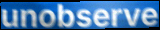
unobserve